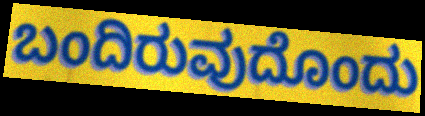
ಬಂದಿರುವುದೊಂದು